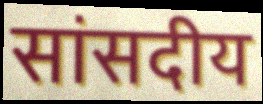
सांसदीय